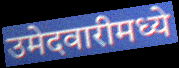
उमेदवारीमध्ये